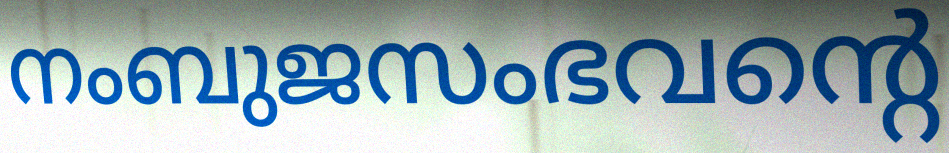
നംബുജസംഭവന്റെ